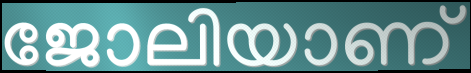
ജോലിയാണ്